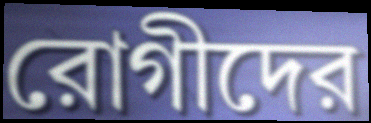
রোগীদের